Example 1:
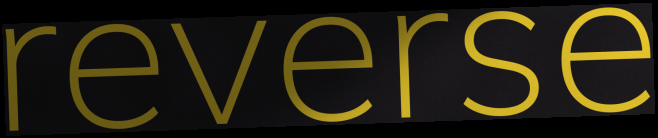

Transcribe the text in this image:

reverse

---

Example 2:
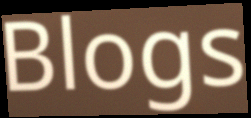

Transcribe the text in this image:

Blogs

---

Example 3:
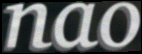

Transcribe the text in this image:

nao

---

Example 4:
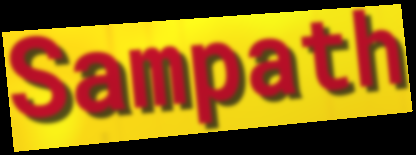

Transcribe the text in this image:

Sampath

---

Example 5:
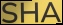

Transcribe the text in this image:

SHA